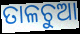
ତାଳଚୁଆ